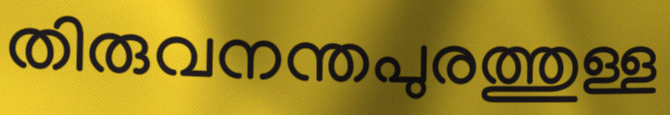
തിരുവനന്തപുരത്തുള്ള